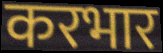
करभार